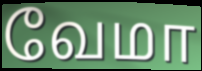
வேமா